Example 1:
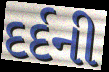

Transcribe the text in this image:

દર્દની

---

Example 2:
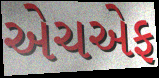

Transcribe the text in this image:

એચએફ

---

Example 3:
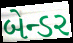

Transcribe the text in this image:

બેન્ડર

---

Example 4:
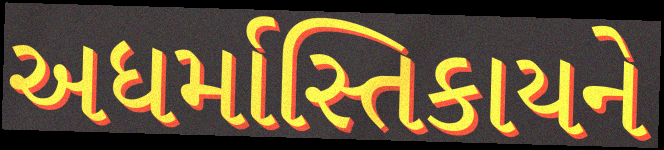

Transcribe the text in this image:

અધર્માસ્તિકાયને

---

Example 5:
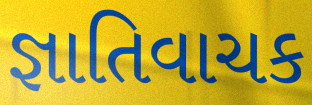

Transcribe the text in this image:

જ્ઞાતિવાચક